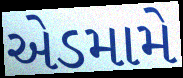
એડમામે